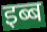
इब्ब